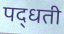
पद्धती